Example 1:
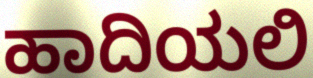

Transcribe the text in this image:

ಹಾದಿಯಲಿ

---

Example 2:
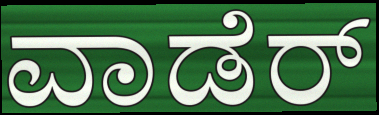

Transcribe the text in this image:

ವಾಡೆರ್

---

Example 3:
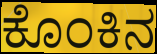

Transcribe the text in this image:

ಕೊಂಕಿನ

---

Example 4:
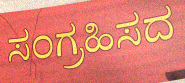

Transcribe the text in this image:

ಸಂಗ್ರಹಿಸದ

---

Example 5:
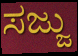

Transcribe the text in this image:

ಸಜ್ಜು